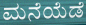
ಮನೆಯೆಡೆ